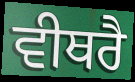
ਵੀਥਰੈ